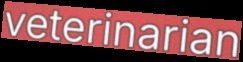
veterinarian